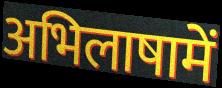
अभिलाषामें